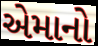
એમાનો